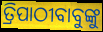
ତ୍ରିପାଠୀବାବୁଙ୍କୁ